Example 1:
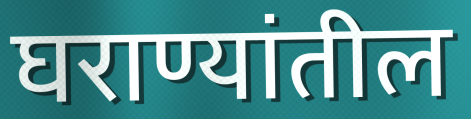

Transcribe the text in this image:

घराण्यांतील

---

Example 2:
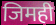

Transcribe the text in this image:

जिमही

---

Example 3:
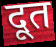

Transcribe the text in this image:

दूत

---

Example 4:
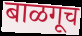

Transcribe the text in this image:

बाळगूच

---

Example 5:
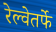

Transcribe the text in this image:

रेल्वेतर्फे